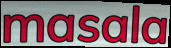
masala